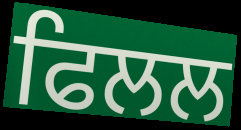
ਫਿਲਲ